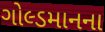
ગોલ્ડમાનના